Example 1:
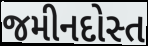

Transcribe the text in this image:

જમીનદોસ્ત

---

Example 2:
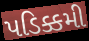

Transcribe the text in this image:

પડિક્કમી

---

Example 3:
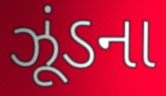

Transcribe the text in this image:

ઝૂંડના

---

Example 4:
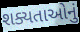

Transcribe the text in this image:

શક્યતાઓનું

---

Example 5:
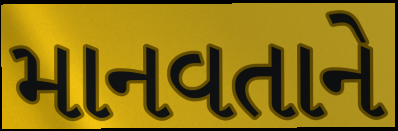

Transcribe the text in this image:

માનવતાને